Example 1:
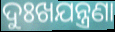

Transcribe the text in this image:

ଦୁଃଖଯନ୍ତ୍ରଣା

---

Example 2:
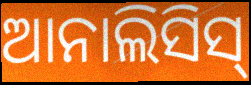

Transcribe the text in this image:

ଆନାଲିସିସ୍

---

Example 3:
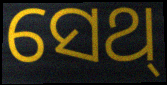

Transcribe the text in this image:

ସେଥ୍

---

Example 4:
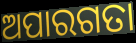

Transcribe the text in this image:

ଅପାରଗତା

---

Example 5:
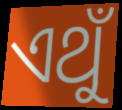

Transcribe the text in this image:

ଏଥୁଁ